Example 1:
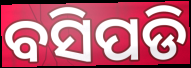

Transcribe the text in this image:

ବସିପଡି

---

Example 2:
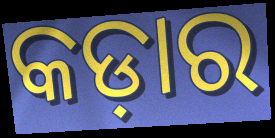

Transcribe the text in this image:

କଡ଼ାର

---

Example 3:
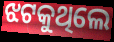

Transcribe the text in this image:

ଝଟକୁଥିଲେ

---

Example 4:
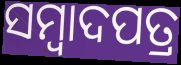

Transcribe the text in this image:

ସମ୍ୱାଦପତ୍ର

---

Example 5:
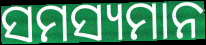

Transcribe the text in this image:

ସମସ୍ୟମାନ